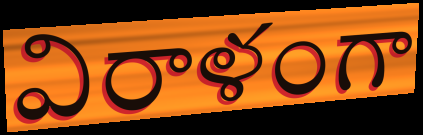
విరాళంగా